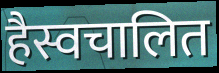
हैस्वचालित